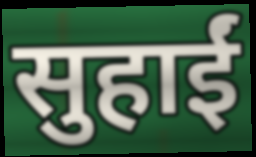
सुहाईं